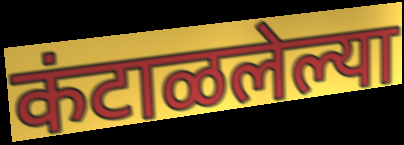
कंटाळलेल्या